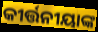
କୀର୍ତ୍ତନୀୟାଙ୍କ